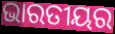
ଭାରତୀୟର